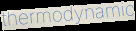
thermodynamic